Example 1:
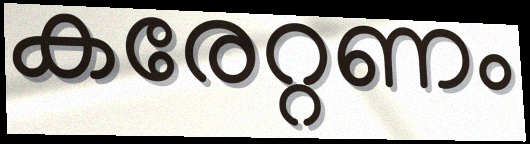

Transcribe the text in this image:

കരേറ്റണം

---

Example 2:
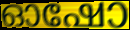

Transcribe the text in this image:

ഓഷോ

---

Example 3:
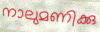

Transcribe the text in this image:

നാലുമണിക്കു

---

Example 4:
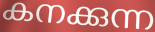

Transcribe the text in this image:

കനക്കുന്ന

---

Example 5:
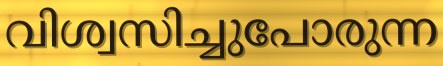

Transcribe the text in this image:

വിശ്വസിച്ചുപോരുന്ന